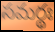
సమర్థః